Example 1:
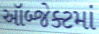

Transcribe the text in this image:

ઑબ્જેક્ટમાં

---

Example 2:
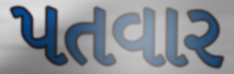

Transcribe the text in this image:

પતવાર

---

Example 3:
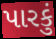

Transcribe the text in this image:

પારકું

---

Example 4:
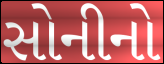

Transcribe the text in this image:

સોનીનો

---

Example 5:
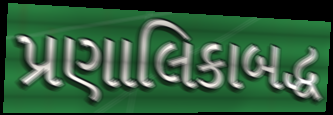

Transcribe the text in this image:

પ્રણાલિકાબદ્ધ